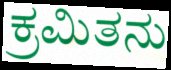
ಕ್ರಮಿತನು